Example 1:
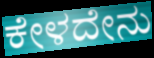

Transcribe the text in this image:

ಕೇಳದೇನು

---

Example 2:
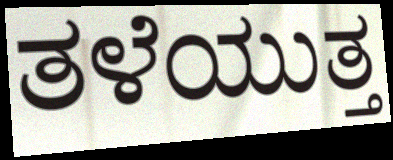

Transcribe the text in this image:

ತಳೆಯುತ್ತ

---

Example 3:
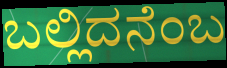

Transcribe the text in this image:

ಬಲ್ಲಿದನೆಂಬ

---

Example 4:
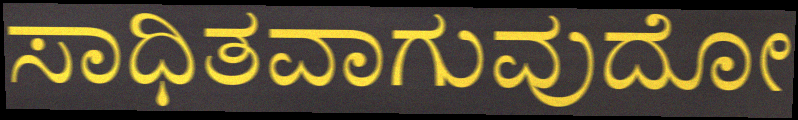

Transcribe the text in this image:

ಸಾಧಿತವಾಗುವುದೋ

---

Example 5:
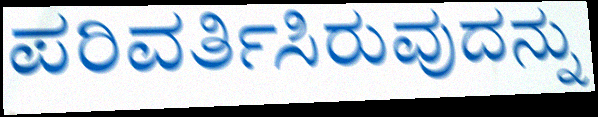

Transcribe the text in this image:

ಪರಿವರ್ತಿಸಿರುವುದನ್ನು